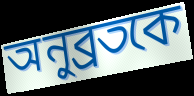
অনুব্রতকে